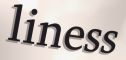
liness